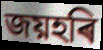
জয়হৰি